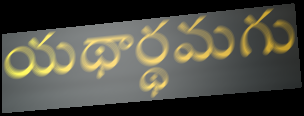
యథార్థమగు